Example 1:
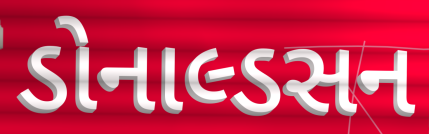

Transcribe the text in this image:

ડોનાલ્ડસન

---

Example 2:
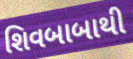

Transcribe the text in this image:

શિવબાબાથી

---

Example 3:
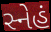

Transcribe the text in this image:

સ્નેહં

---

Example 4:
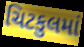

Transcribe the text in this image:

ચિટકુલમાં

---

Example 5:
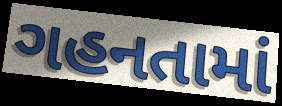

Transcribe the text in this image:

ગહનતામાં